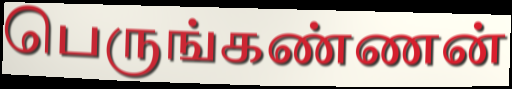
பெருங்கண்ணன்